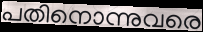
പതിനൊന്നുവരെ